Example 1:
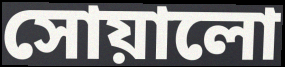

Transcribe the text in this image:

সোয়ালো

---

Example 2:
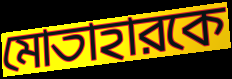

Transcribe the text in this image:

মোতাহারকে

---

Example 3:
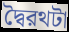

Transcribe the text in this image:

দ্বৈরথটা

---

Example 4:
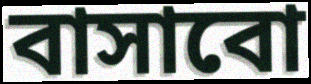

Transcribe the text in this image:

বাসাবো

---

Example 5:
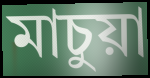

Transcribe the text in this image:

মাচুয়া